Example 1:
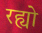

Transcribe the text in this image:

रह्यो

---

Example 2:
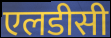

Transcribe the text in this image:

एलडीसी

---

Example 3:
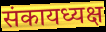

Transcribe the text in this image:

संकायध्यक्ष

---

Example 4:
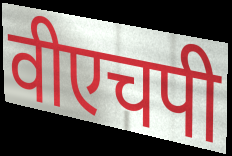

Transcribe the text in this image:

वीएचपी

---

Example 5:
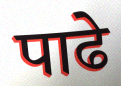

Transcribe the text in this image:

पाढे